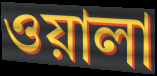
ওয়ালা